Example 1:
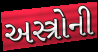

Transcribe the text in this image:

અસ્ત્રોની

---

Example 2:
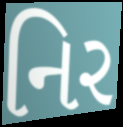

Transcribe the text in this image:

નિર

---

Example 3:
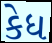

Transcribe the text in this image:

કેધ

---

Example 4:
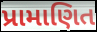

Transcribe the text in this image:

પ્રામાણિત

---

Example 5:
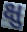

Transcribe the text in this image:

ક્ષુ